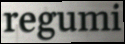
regumi